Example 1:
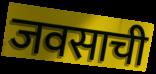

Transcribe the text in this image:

जवसाची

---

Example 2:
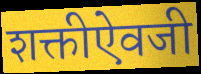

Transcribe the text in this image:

शक्तीऐवजी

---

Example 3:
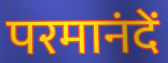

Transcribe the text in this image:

परमानंदें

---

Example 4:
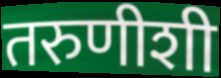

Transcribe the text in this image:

तरुणीशी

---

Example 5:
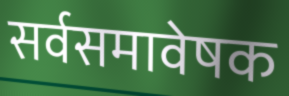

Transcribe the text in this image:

सर्वसमावेषक